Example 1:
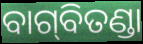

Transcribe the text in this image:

ବାଗ୍‌ବିତଣ୍ଡା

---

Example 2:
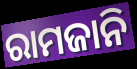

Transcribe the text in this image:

ରାମଜାନି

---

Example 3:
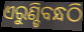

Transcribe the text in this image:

ଏରୁଣ୍ଡିବନ୍ଧଠି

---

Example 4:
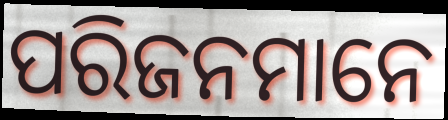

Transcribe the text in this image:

ପରିଜନମାନେ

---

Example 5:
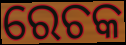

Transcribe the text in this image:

ରେଚକ